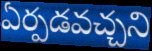
ఏర్పడవచ్చని